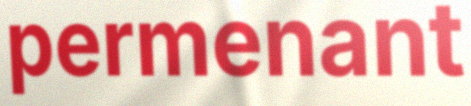
permenant